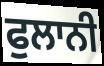
ਫੁਲਾਨੀ